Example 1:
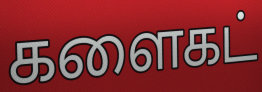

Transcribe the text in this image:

களைகட்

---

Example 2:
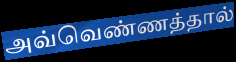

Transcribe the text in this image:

அவ்வெண்ணத்தால்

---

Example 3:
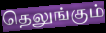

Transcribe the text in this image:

தெலுங்கும்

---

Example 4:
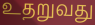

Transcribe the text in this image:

உதறுவது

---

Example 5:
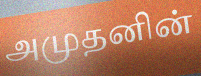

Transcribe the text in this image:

அமுதனின்